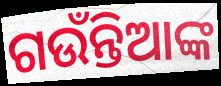
ଗଉଁନ୍ତିଆଙ୍କ